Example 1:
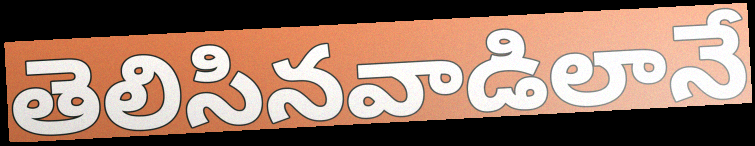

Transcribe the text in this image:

తెలిసినవాడిలానే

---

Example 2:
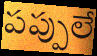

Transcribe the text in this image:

పప్పులే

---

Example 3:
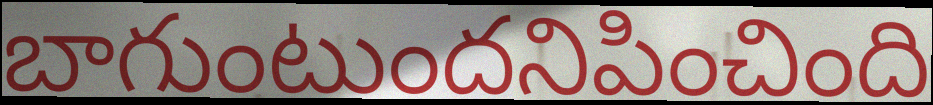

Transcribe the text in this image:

బాగుంటుందనిపించింది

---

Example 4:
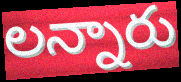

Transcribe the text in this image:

లన్నారు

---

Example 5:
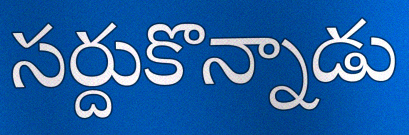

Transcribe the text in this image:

సర్దుకొన్నాడు